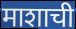
माशाची